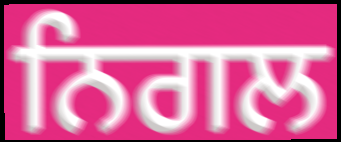
ਨਿਗਲ